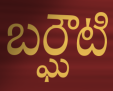
బర్ఘౌటి